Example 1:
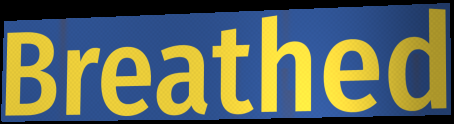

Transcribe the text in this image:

Breathed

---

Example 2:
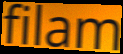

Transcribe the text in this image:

filam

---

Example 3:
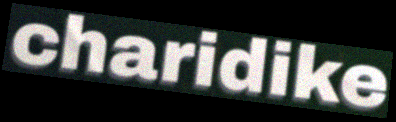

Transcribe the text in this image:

charidike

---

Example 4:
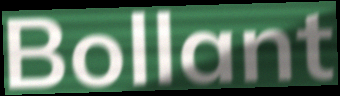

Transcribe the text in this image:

Bollant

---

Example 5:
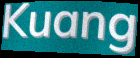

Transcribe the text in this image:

Kuang